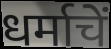
धर्माचें